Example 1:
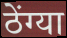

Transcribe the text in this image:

ठेंग्या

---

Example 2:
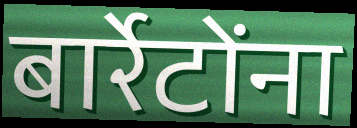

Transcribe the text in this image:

बार्रेटोंना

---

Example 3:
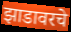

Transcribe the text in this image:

झाडावरचे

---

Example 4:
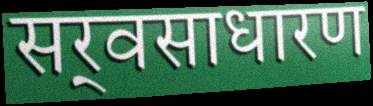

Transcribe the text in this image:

सर्वसाधारण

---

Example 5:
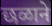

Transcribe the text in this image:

छळाने